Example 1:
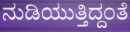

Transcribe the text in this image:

ನುಡಿಯುತ್ತಿದ್ದಂತೆ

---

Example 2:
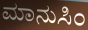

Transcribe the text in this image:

ಮಾನುಸಿಂ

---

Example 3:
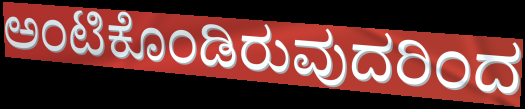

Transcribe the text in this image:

ಅಂಟಿಕೊಂಡಿರುವುದರಿಂದ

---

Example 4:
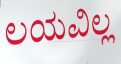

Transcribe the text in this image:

ಲಯವಿಲ್ಲ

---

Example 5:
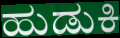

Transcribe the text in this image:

ಹುಡುಕಿ